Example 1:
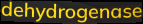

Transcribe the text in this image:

dehydrogenase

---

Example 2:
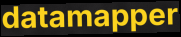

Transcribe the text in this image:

datamapper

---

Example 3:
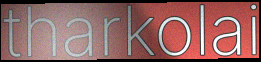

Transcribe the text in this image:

tharkolai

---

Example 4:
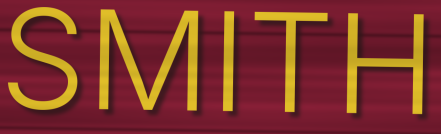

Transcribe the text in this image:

SMITH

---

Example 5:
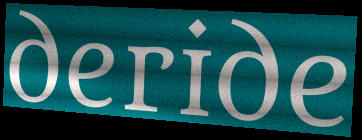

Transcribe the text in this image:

deride